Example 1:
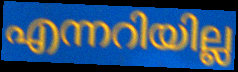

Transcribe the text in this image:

എന്നറിയില്ല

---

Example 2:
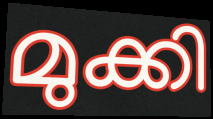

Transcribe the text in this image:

മുക്കി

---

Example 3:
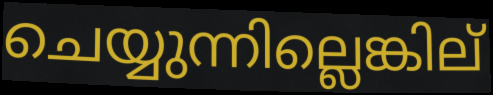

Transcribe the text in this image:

ചെയ്യുന്നില്ലെങ്കില്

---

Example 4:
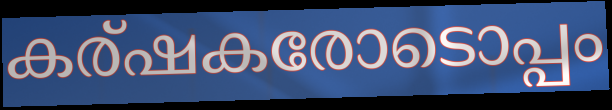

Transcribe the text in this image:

കര്ഷകരോടൊപ്പം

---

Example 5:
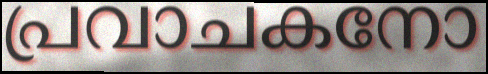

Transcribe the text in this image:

പ്രവാചകനോ